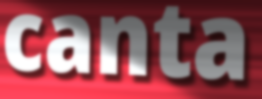
canta